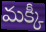
మక్కీ